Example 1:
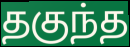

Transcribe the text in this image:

தகுந்த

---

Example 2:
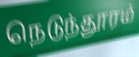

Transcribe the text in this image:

நெடுந்தூரம்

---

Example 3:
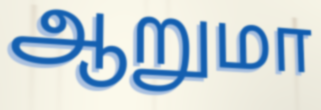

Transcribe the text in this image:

ஆறுமா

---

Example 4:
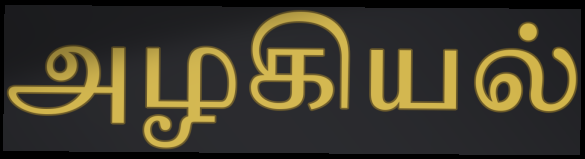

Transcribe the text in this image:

அழகியல்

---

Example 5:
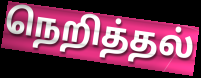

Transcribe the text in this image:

நெறித்தல்